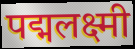
पद्मलक्ष्मी